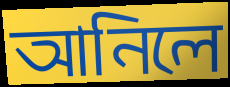
আনিলে